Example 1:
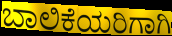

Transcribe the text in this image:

ಬಾಲಿಕೆಯರಿಗಾಗಿ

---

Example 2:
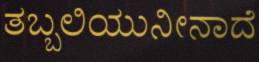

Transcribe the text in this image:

ತಬ್ಬಲಿಯುನೀನಾದೆ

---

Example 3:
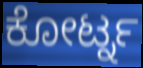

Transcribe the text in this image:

ಕೋರ್ಟ್ನ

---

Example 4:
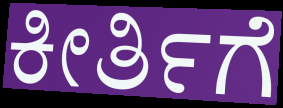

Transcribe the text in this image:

ಕೀರ್ತಿಗೆ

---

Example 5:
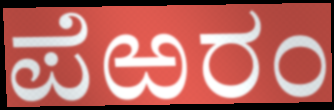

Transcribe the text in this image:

ಪೆಱರಂ